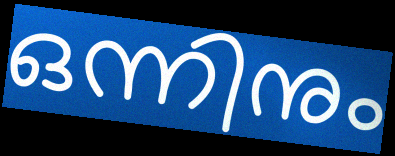
ഒന്നിനും